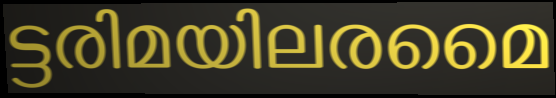
ട്ടരിമയിലരമൈ